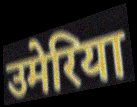
उमेरिया